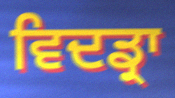
ਵਿਦਡ੍ਰਾ